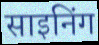
साइनिंग